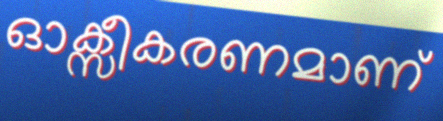
ഓക്സീകരണമാണ്